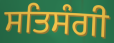
ਸਤਿਸੰਗੀ